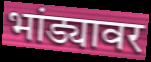
भांड्यावर